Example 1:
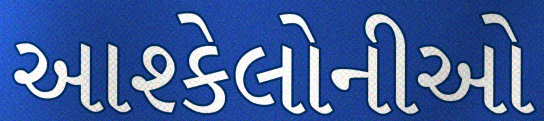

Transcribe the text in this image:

આશ્કેલોનીઓ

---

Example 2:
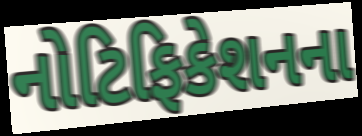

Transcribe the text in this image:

નોટિફિકેશનના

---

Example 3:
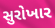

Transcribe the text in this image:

સુરોખાર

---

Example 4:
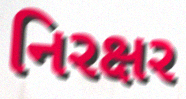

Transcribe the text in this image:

નિરક્ષર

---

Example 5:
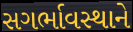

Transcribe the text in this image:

સગર્ભાવસ્થાને